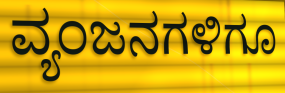
ವ್ಯಂಜನಗಳಿಗೂ